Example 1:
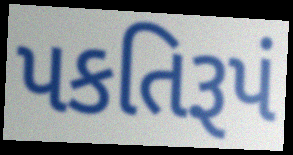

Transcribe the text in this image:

પકતિરૂપં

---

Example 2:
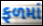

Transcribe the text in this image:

ફળમાં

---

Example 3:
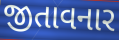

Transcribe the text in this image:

જીતાવનાર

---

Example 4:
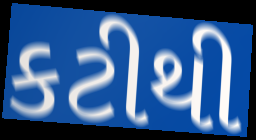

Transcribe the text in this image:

કટીથી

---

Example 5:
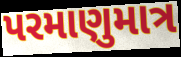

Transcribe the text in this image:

પરમાણુમાત્ર